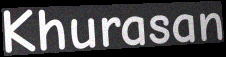
Khurasan